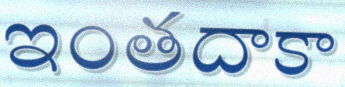
ఇంతదాకా